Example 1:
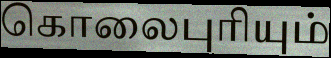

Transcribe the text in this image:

கொலைபுரியும்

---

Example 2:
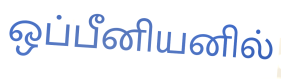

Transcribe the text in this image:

ஒப்பீனியனில்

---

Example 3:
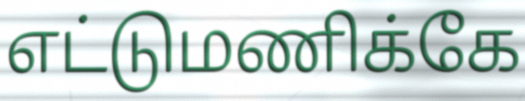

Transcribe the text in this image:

எட்டுமணிக்கே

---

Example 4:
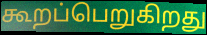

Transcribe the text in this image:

கூறப்பெறுகிறது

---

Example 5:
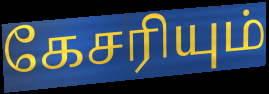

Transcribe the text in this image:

கேசரியும்